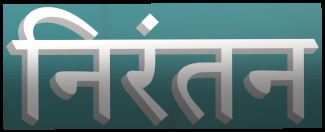
निरंतन